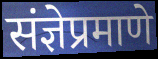
संज्ञेप्रमाणे